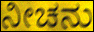
ನೀಚನು